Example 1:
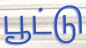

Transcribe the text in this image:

பூட்டு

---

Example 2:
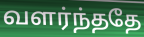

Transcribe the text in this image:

வளர்ந்ததே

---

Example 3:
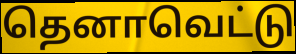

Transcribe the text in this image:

தெனாவெட்டு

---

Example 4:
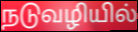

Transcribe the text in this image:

நடுவழியில்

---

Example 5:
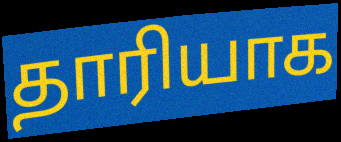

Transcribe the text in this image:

தாரியாக